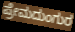
ಪ್ರೇಮದುಂಗುರ